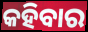
କହିବାର